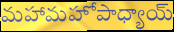
మహామహోపాధ్యాయ్